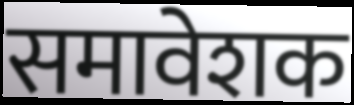
समावेशक